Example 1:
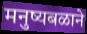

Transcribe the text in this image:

मनुष्यबळाने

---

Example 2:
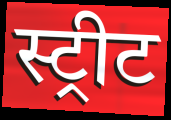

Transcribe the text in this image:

स्ट्रीट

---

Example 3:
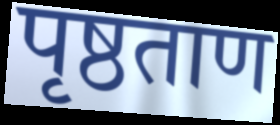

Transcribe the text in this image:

पृष्ठताण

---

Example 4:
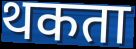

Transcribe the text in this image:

थकता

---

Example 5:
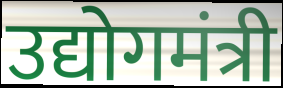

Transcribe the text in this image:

उद्योगमंत्री